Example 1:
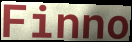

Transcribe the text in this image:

Finno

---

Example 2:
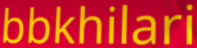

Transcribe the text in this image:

bbkhilari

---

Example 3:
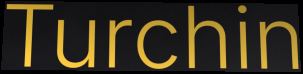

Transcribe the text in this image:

Turchin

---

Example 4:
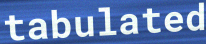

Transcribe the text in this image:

tabulated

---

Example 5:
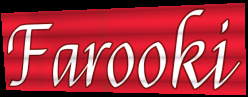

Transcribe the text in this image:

Farooki